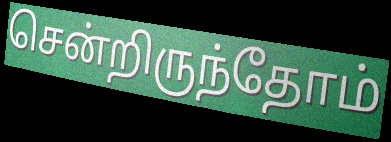
சென்றிருந்தோம்